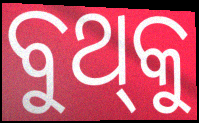
ବୁଥ୍‌କୁ